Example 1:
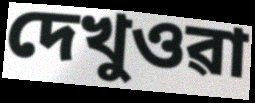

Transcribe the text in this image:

দেখুওৱা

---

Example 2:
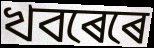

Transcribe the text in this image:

খবৰেৰে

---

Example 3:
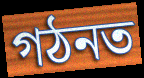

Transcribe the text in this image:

গঠনত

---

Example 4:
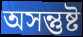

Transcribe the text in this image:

অসন্তুষ্ট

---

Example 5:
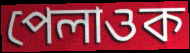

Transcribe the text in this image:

পেলাওক